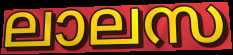
ലാലസ